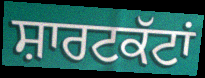
ਸ਼ਾਰਟਕੱਟਾਂ